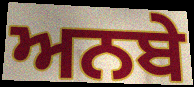
ਅਨਬੇ